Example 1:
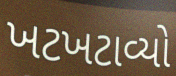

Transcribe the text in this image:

ખટખટાવ્યો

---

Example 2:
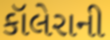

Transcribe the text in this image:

કૉલેરાની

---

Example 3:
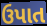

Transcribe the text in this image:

ઉપાત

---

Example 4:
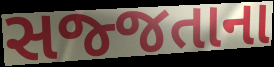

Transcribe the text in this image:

સજ્જતાના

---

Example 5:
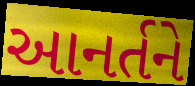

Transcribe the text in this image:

આનર્તને